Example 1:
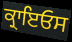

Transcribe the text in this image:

ਕ੍ਰਾਇਓਸ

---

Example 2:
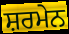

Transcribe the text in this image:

ਸ਼ਰਮੇਨ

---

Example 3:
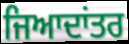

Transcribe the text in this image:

ਜਿਆਦਾਂਤਰ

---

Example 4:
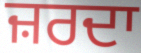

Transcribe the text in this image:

ਜ਼ਰਦਾ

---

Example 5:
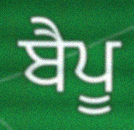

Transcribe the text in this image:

ਬੈਪੂ